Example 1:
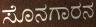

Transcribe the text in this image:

ಸೊನಗಾರನ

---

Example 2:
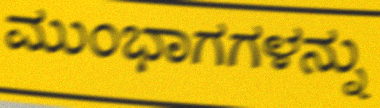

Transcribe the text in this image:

ಮುಂಭಾಗಗಳನ್ನು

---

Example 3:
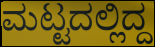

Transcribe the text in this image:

ಮಟ್ಟದಲ್ಲಿದ್ದ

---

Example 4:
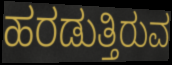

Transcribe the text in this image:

ಹರಡುತ್ತಿರುವ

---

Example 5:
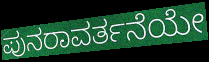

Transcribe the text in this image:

ಪುನರಾವರ್ತನೆಯೇ